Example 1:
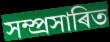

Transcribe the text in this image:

সম্প্ৰসাৰিত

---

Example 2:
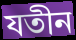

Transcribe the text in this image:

যতীন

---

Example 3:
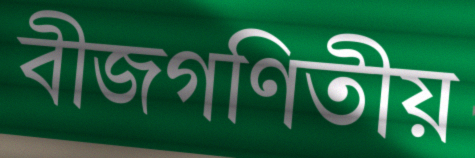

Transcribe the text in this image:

বীজগণিতীয়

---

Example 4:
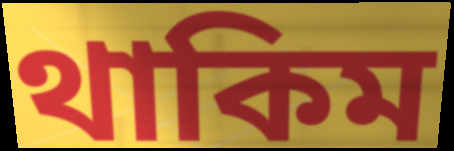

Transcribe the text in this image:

থাকিম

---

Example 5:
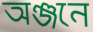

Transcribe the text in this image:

অঞ্জনে